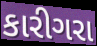
કારીગરા